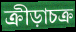
ক্রীড়াচক্র